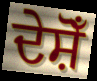
ਦੇਸ਼ੋਁ